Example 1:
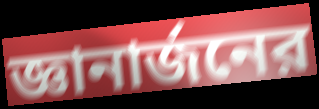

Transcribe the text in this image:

জ্ঞানার্জনের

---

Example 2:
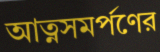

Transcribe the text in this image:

আত্নসমর্পণের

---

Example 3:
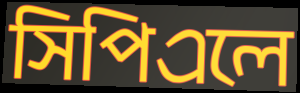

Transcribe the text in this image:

সিপিএলে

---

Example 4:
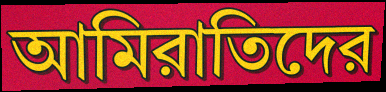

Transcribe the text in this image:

আমিরাতিদের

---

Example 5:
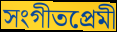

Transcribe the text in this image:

সংগীতপ্রেমী